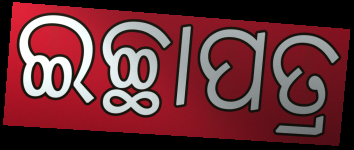
ଇଚ୍ଛାପତ୍ର